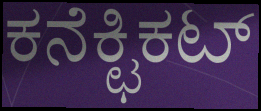
ಕನೆಕ್ಟಿಕಟ್